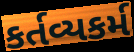
કર્તવ્યકર્મ